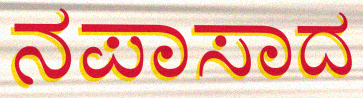
ನಪಾಸಾದ